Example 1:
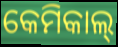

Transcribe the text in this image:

କେମିକାଲ୍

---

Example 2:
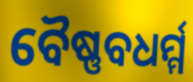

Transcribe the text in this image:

ବୈଷ୍ଣବଧର୍ମ୍ମ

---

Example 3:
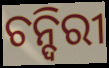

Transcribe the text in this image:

ଚନ୍ଦିରୀ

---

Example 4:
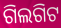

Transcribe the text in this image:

ଗିଲଗିଟ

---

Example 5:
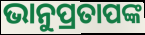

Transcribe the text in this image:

ଭାନୁପ୍ରତାପଙ୍କ